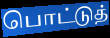
பொட்டுத்